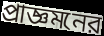
প্রাজ্ঞমনের